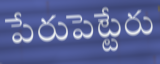
పేరుపెట్టేరు